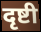
दृष्टी